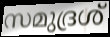
സമുദ്രശ്